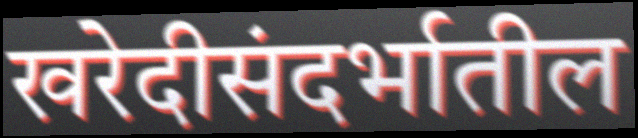
खरेदीसंदर्भातील